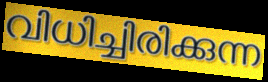
വിധിച്ചിരിക്കുന്ന